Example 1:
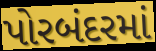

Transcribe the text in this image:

પોરબંદરમાં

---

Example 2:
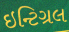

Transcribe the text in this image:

ઇન્ટિગ્રલ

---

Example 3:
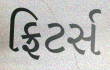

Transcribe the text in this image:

ફ્રિટર્સ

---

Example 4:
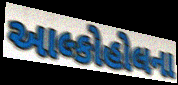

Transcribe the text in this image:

આલ્કોહોલના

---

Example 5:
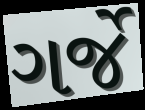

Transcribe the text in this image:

ગર્જે